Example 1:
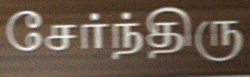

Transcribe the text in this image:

சேர்ந்திரு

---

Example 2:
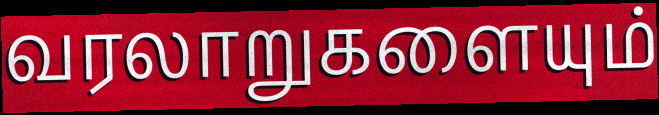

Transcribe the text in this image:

வரலாறுகளையும்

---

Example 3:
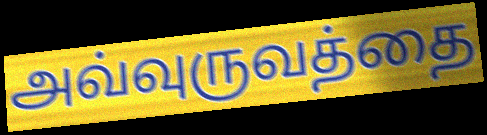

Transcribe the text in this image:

அவ்வுருவத்தை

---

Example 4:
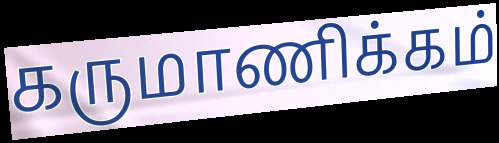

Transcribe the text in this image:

கருமாணிக்கம்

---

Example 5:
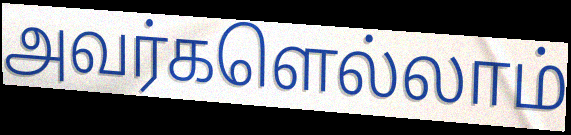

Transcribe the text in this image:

அவர்களெல்லாம்